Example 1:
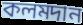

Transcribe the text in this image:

কলমদান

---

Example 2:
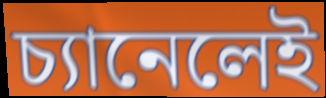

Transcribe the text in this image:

চ্যানেলেই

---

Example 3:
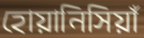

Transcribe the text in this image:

হোয়ানিসিয়াঁ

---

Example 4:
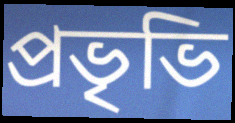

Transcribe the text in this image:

প্রভৃভি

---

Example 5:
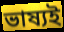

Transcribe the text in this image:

ভাষ্যই